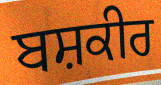
ਬਸ਼ਕੀਰ